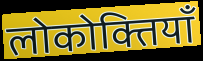
लोकोक्तियाँ